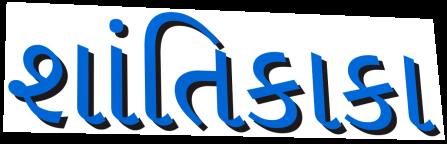
શાંતિકાકા